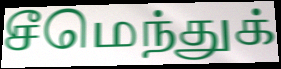
சீமெந்துக்